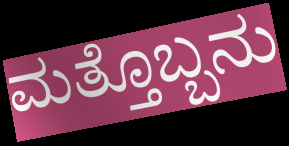
ಮತ್ತೊಬ್ಬನು